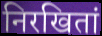
निरखितां